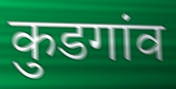
कुडगांव